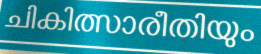
ചികിത്സാരീതിയും